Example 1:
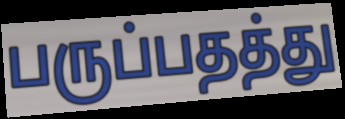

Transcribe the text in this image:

பருப்பதத்து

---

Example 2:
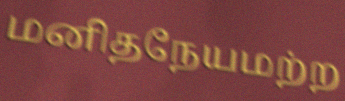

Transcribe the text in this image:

மனிதநேயமற்ற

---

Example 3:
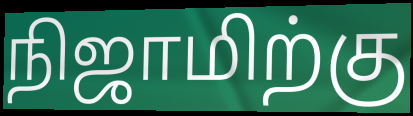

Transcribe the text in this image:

நிஜாமிற்கு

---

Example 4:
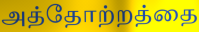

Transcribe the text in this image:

அத்தோற்றத்தை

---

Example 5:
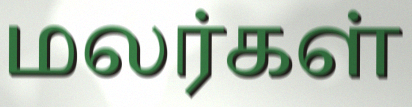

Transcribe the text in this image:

மலர்கள்